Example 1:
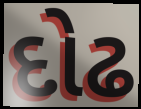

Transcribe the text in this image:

દોઢ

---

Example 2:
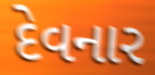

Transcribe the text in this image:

દેવનાર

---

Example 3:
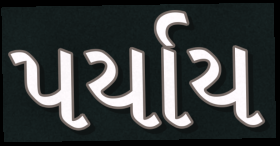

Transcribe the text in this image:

પર્યાય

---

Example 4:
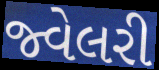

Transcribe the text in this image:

જ્વેલરી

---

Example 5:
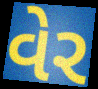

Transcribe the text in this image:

વેર